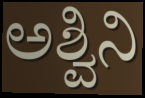
ಅಶ್ವಿನಿ